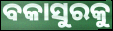
ବକାସୁରକୁ